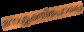
മനശ്ശക്തിപോലെ